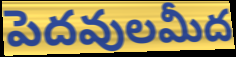
పెదవులమీద